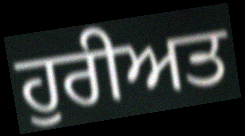
ਹੁਰੀਅਤ